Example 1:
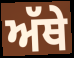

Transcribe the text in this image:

ਅੱਥੇ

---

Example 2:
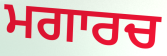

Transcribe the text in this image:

ਮਗਾਰਚ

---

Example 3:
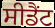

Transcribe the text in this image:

ਸੀਡੈਂਟ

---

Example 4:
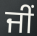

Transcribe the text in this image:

ਜੀਂ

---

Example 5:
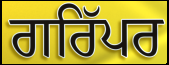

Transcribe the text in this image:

ਗਰਿੱਪਰ